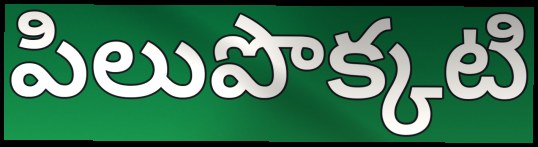
పిలుపొక్కటి